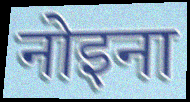
नोइना